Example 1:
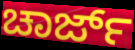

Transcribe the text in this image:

ಚಾರ್ಜ್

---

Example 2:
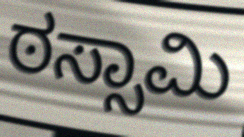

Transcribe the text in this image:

ಠಸ್ಸಾಮಿ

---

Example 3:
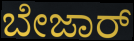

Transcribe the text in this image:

ಬೇಜಾರ್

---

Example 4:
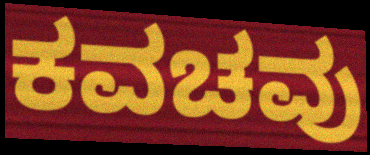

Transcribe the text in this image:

ಕವಚವು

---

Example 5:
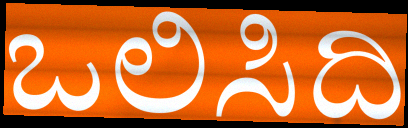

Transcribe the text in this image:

ಒಲಿಸಿದಿ